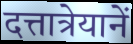
दत्तात्रेयानें